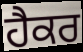
ਹੈਕਰ